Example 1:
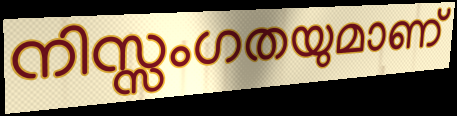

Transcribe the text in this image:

നിസ്സംഗതയുമാണ്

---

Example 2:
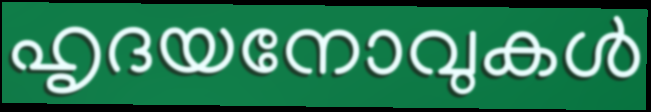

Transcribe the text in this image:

ഹൃദയനോവുകൾ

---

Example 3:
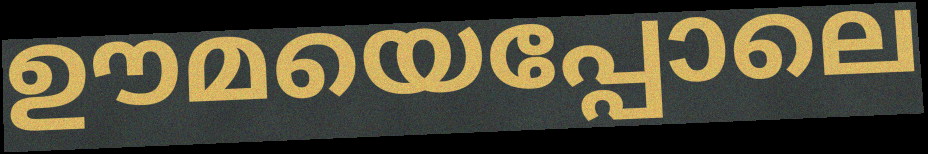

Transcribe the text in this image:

ഊമയെപ്പോലെ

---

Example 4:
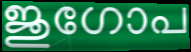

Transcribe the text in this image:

ജുഗോപ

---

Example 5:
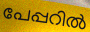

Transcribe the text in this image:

പേപ്പറിൽ